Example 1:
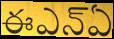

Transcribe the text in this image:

ఈఎన్ఏ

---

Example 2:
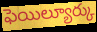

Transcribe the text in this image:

ఫెయిల్యూర్కు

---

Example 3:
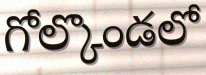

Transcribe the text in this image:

గోల్కొండలో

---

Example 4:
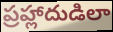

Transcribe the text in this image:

ప్రహ్లాదుడిలా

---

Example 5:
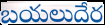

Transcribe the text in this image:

బయలుదేర